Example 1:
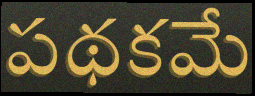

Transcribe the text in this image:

పథకమే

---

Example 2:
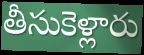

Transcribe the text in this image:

తీసుకెళ్లారు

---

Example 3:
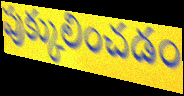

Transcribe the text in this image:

పుక్కులించడం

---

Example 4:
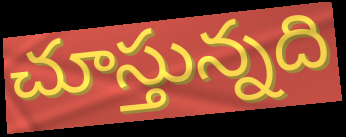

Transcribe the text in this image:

చూస్తున్నది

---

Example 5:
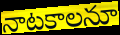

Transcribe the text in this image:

నాటకాలనూ